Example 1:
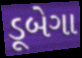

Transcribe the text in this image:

ડૂબેગા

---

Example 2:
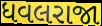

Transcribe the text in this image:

ધવલરાજા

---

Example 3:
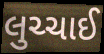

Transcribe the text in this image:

લુચ્ચાઈ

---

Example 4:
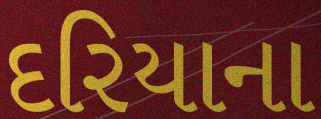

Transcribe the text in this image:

દરિયાના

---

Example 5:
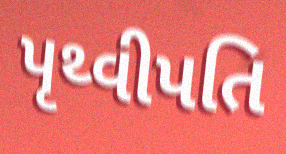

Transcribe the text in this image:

પૃથ્વીપતિ